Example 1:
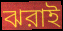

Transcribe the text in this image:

ঝরাই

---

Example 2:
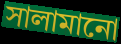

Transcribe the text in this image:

সালামানো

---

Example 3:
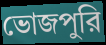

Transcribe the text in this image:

ভোজপুরি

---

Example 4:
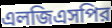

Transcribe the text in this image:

এলজিএসপির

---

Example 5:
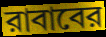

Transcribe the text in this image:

রাবাবের